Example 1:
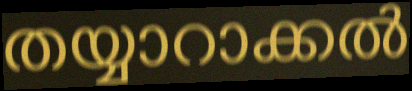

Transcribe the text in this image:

തയ്യാറാക്കൽ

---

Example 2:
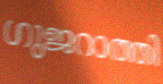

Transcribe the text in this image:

ഗുജറാത്തി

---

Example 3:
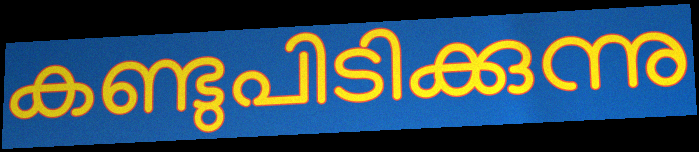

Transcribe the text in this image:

കണ്ടുപിടിക്കുന്നു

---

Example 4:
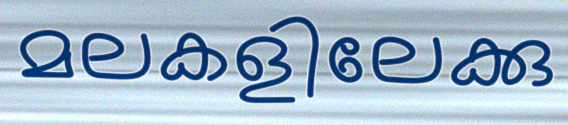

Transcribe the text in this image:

മലകളിലേക്കു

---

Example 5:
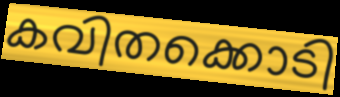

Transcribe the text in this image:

കവിതക്കൊടി